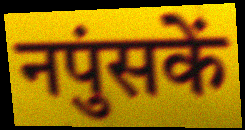
नपुंसकें